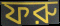
ফরু